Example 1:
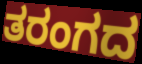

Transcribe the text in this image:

ತರಂಗದ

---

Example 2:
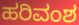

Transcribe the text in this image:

ಹರಿವಂಶ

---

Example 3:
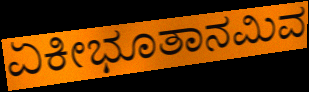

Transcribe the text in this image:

ಏಕೀಭೂತಾನಮಿವ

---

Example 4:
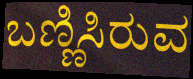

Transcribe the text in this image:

ಬಣ್ಣಿಸಿರುವ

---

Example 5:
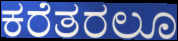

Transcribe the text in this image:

ಕರೆತರಲೂ